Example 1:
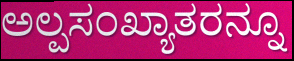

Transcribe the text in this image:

ಅಲ್ಪಸಂಖ್ಯಾತರನ್ನೂ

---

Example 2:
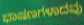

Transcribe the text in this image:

ಭಾಷಣಗಳಾದವು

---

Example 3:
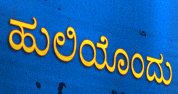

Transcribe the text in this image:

ಹುಲಿಯೊಂದು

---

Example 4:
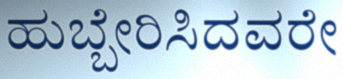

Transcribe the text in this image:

ಹುಬ್ಬೇರಿಸಿದವರೇ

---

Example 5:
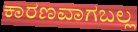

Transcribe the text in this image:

ಕಾರಣವಾಗಬಲ್ಲ